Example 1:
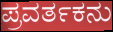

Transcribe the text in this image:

ಪ್ರವರ್ತಕನು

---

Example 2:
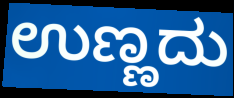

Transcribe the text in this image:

ಉಣ್ಣದು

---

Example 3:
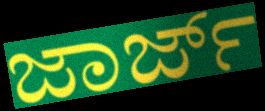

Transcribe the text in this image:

ಜಾರ್ಜ್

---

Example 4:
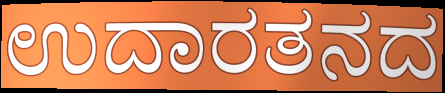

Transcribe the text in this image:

ಉದಾರತನದ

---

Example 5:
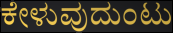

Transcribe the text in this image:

ಕೇಳುವುದುಂಟು